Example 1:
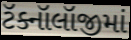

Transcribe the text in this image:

ટૅક્નૉલૉજીમાં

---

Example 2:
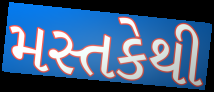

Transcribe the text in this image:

મસ્તકેથી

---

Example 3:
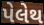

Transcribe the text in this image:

પેલેથ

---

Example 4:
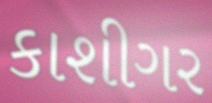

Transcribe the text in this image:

કાશીગર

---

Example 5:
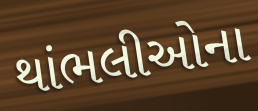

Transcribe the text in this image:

થાંભલીઓના